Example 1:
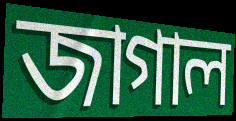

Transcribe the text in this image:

জাগাল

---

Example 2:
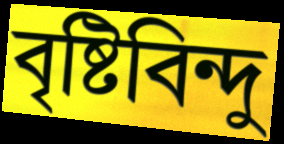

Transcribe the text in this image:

বৃষ্টিবিন্দু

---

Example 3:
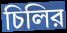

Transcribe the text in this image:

চিলির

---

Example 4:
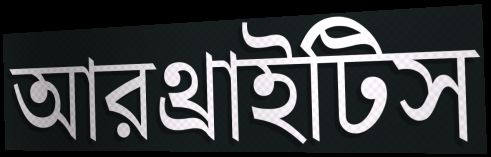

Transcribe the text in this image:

আরথ্রাইটিস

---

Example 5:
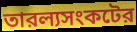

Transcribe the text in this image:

তারল্যসংকটের